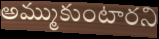
అమ్ముకుంటారని